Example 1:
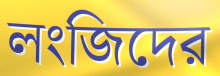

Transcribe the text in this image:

লংজিদের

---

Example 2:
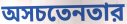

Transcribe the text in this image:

অসচতেনতার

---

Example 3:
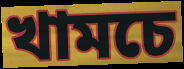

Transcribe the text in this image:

খামচে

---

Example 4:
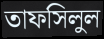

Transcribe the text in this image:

তাফসিলুল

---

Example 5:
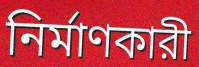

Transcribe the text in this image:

নির্মাণকারী